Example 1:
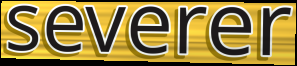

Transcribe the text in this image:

severer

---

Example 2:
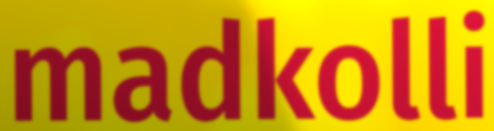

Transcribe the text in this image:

madkolli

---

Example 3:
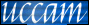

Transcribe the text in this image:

uccam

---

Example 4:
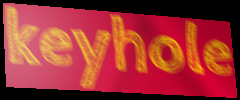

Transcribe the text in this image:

keyhole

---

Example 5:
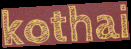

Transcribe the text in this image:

kothai